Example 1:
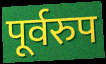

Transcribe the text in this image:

पूर्वरुप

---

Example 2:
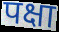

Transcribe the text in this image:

पक्षा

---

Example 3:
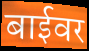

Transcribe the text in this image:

बाईवर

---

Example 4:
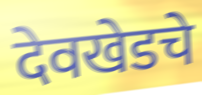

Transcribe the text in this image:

देवखेडचे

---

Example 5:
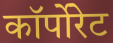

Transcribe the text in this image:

कॉर्पोरेट